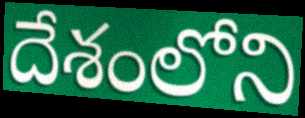
దేశంలోని